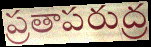
ప్రతాపరుద్ర